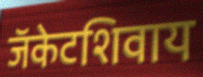
जॅकेटशिवाय